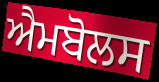
ਐਮਬੋਲਸ